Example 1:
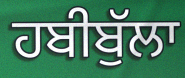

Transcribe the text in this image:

ਹਬੀਬੁੱਲਾ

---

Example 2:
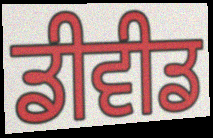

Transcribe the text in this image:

ਡੀਵੀਡ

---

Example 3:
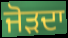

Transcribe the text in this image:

ਜੋੜਦਾ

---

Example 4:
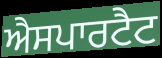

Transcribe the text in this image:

ਐਸਪਾਰਟੈਟ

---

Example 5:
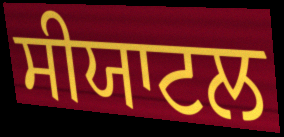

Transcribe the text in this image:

ਸੀਯਾਟਲ